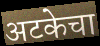
अटकेचा